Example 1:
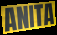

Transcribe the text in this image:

ANITA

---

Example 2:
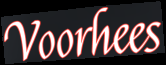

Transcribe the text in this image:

Voorhees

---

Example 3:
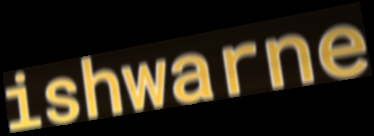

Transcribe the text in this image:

ishwarne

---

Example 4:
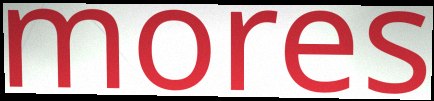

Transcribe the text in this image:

mores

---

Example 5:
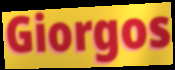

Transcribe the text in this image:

Giorgos